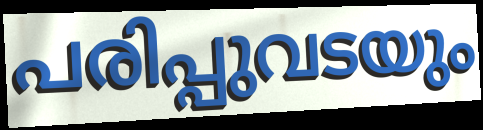
പരിപ്പുവടയും